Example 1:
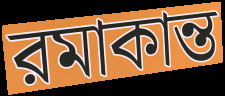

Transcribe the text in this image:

রমাকান্ত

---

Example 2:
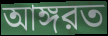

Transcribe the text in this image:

আঙ্গরত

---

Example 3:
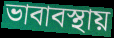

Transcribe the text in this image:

ভাবাবস্থায়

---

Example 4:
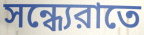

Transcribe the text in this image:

সন্ধ্যেরাতে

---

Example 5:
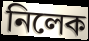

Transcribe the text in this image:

নিলেক